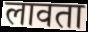
लावता